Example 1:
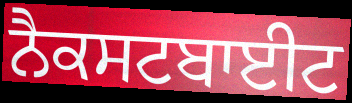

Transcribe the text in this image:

ਨੈਕਸਟਬਾਈਟ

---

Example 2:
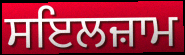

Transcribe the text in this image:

ਸਇਲਜ਼ਾਮ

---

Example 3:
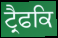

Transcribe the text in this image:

ਟ੍ਰੈਫਕਿ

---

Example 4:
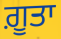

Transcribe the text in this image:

ਗ਼ੂਤਾ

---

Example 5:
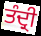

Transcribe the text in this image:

ਤੰਦ੍ਰੀ